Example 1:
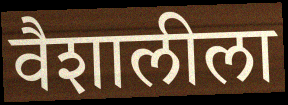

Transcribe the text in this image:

वैशालीला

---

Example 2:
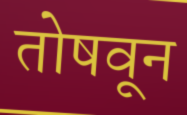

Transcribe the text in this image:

तोषवून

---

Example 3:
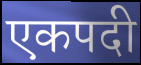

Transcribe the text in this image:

एकपदी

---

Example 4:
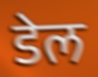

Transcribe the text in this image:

डेल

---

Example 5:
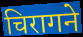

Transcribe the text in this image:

चिरागने